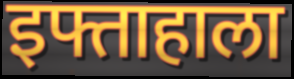
इफ्ताहाला